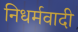
निधर्मवादी